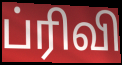
ப்ரிவி